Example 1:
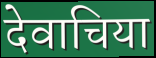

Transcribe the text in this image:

देवाचिया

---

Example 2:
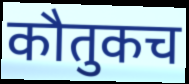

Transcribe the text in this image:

कौतुकच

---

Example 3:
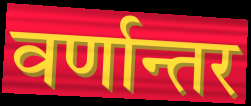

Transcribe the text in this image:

वर्णान्तर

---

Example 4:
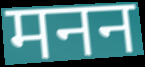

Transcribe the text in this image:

मनन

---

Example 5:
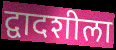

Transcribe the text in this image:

द्वादशीला